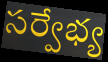
సర్వేభ్య